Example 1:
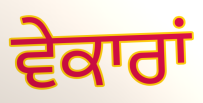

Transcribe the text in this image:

ਵੇਕਾਰਾਂ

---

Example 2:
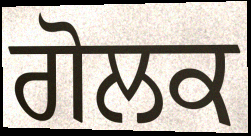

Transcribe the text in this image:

ਗੋਲਕ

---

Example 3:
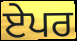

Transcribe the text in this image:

ਏਪਰ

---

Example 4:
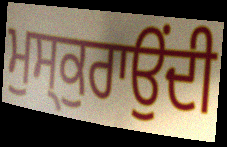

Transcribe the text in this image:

ਮੁਸ੍ਕੁਰਾਉਂਦੀ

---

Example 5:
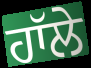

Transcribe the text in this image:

ਹਾੱਲੇ